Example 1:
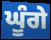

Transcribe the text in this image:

ਘੂੰਗੇ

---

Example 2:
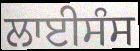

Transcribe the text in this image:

ਲਾਈਸੰਸ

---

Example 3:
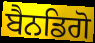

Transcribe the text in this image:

ਬੈਨਡਿਗੋ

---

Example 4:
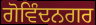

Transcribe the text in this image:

ਗੋਵਿੰਦਨਗਰ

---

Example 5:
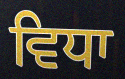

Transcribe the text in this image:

ਵਿਧਾ